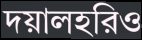
দয়ালহরিও